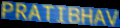
PRATIBHAV